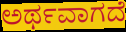
ಅರ್ಥವಾಗದೆ